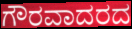
ಗೌರವಾದರದ